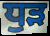
ਧੁੜ